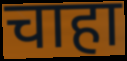
चाहा